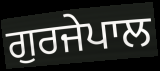
ਗੁਰਜੇਪਾਲ